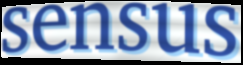
sensus